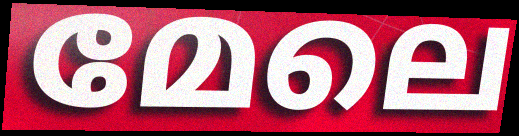
മേലെ